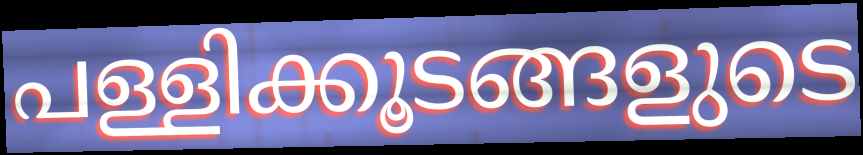
പള്ളിക്കൂടങ്ങളുടെ